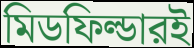
মিডফিল্ডারই